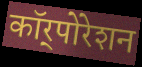
कॉर्पोरेशन